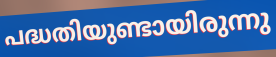
പദ്ധതിയുണ്ടായിരുന്നു